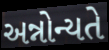
અન્નોન્યતે